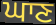
ਘਾਣ